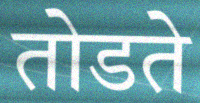
तोडते